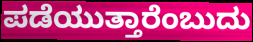
ಪಡೆಯುತ್ತಾರೆಂಬುದು